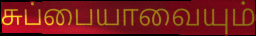
சுப்பையாவையும்